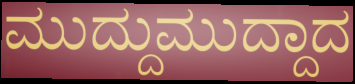
ಮುದ್ದುಮುದ್ದಾದ